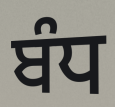
ਬੰਧ